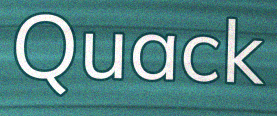
Quack